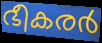
ഭീകരർ